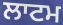
ਲਾਟਮ